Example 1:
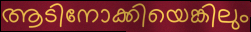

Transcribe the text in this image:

ആടിനോക്കിയെങ്കിലും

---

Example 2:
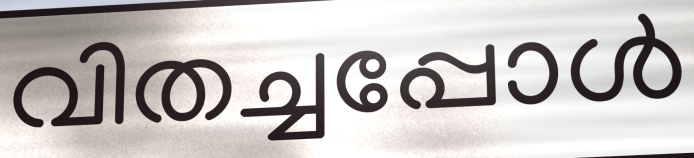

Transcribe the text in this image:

വിതച്ചപ്പോൾ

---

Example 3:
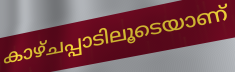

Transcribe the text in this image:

കാഴ്ചപ്പാടിലൂടെയാണ്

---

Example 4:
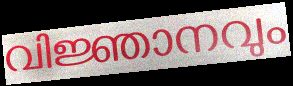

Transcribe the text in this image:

വിജ്ഞാനവും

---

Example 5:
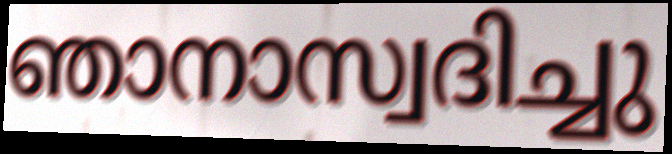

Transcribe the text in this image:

ഞാനാസ്വദിച്ചു